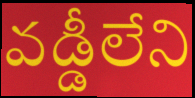
వడ్డీలేని